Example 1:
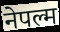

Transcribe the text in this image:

नेपल्म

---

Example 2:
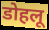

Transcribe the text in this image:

डोहलू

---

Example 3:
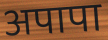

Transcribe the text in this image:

अपापा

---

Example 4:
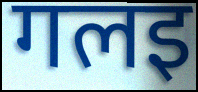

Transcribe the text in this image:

गलइ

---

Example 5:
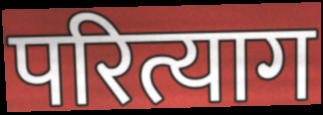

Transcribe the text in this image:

परित्याग